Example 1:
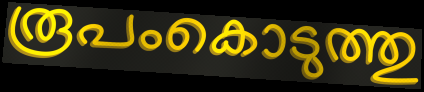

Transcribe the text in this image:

രൂപംകൊടുത്തു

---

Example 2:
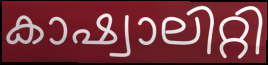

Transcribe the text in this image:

കാഷ്വാലിറ്റി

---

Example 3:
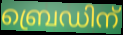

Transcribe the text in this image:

ബ്രെഡിന്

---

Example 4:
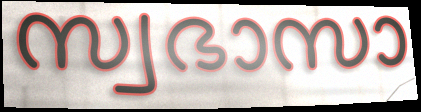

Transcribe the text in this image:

സ്വഭാസാ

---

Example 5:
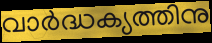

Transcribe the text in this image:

വാർദ്ധക്യത്തിനു